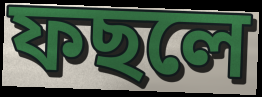
ফছলে